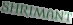
SHRIMANT